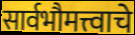
सार्वभौमत्त्वाचे